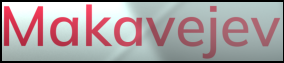
Makavejev